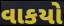
વાકયો